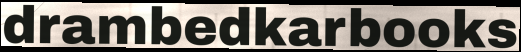
drambedkarbooks